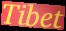
Tibet